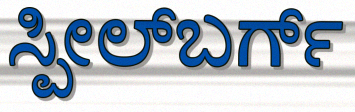
ಸ್ಪೀಲ್‌ಬರ್ಗ್